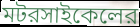
মটরসাইকেলের